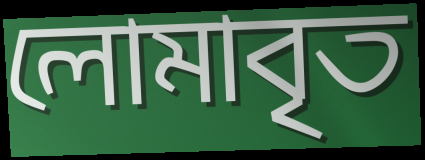
লোমাবৃত